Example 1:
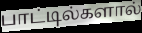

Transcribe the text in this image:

பாட்டில்களால்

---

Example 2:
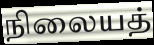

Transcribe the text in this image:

நிலையத்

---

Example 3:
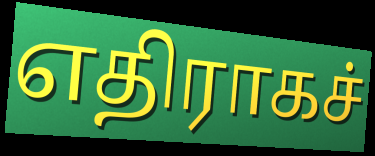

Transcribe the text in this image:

எதிராகச்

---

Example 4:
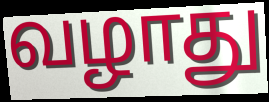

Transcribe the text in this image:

வழாது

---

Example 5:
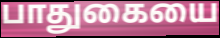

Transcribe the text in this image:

பாதுகையை